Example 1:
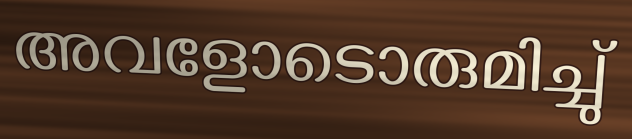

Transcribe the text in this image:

അവളോടൊരുമിച്ചു്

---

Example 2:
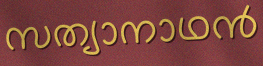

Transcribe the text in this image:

സത്യാനാഥൻ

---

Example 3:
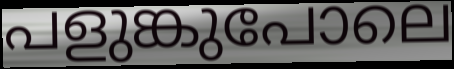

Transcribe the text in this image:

പളുങ്കുപോലെ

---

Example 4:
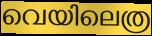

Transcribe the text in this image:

വെയിലെത്ര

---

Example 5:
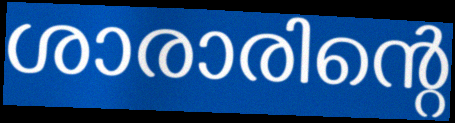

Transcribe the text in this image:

ശാരാരിന്റെ